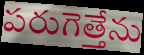
పరుగెత్తేను